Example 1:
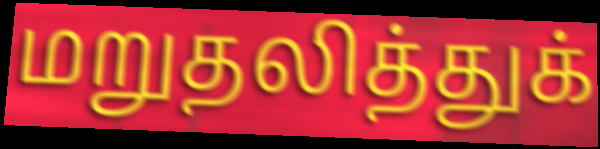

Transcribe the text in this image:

மறுதலித்துக்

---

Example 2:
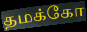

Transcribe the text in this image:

தமக்கோ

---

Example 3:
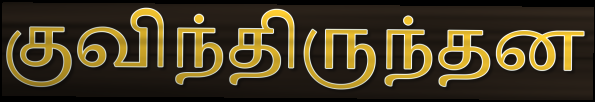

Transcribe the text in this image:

குவிந்திருந்தன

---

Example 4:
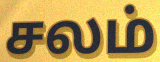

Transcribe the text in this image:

சலம்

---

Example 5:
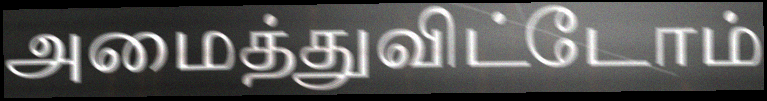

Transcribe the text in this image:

அமைத்துவிட்டோம்